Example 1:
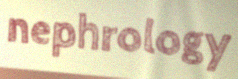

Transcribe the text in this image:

nephrology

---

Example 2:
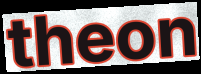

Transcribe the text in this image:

theon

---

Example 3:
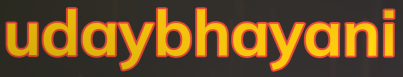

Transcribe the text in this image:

udaybhayani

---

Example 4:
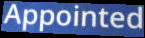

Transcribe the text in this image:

Appointed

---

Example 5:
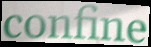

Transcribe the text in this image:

confine